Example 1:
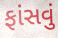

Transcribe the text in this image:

ફાંસવું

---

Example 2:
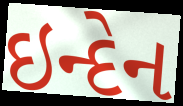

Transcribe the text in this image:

ઇન્દેન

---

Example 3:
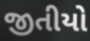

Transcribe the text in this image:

જીતીયો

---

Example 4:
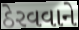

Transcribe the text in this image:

ઠેરવવાને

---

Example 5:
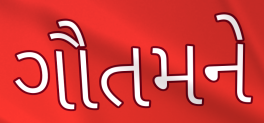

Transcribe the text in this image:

ગૌતમને